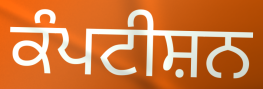
ਕੰਪਟੀਸ਼ਨ